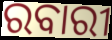
ରବାରୀ